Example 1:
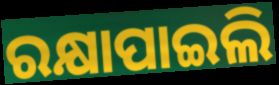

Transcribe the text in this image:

ରକ୍ଷାପାଇଲି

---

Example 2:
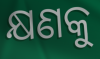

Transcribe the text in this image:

କ୍ଷଣକୁ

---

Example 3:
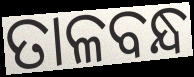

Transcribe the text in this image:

ତାଳବନ୍ଧ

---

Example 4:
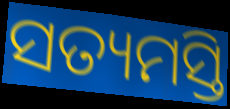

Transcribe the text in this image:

ସତ୍ୟମସ୍ତି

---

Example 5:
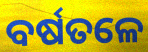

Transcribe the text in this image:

ବର୍ଷତଳେ